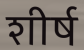
शीर्ष